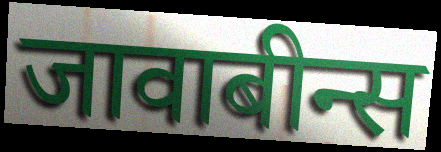
जावाबीन्स